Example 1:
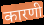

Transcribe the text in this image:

कारणी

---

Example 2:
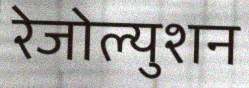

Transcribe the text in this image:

रेजोल्युशन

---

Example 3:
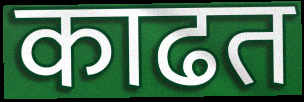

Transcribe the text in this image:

काढत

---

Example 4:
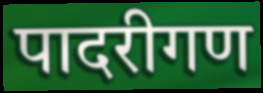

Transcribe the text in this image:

पादरीगण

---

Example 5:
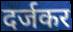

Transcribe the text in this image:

दर्जकर